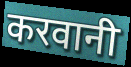
करवानी